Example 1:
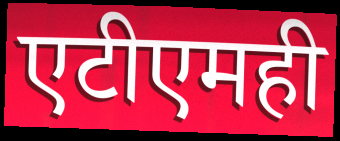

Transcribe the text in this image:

एटीएमही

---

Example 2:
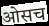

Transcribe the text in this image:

ओसच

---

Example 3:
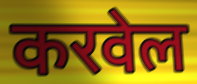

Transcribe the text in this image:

करवेल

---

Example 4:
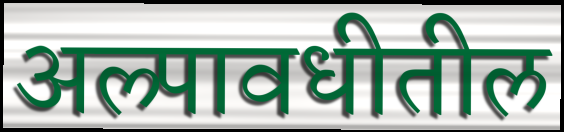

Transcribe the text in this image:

अल्पावधीतील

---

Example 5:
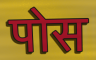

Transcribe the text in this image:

पोस